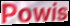
Powis